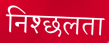
निश्छलता